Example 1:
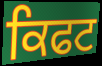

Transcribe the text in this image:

ਕਿਫਟ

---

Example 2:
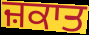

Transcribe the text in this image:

ਜ਼ਕਾਤ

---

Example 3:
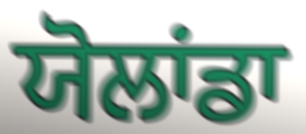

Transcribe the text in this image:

ਯੋਲਾਂਡਾ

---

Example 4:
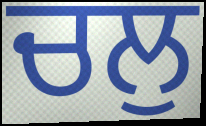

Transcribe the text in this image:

ਚਲੁ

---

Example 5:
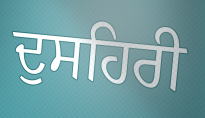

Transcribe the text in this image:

ਦੁਸਹਿਰੀ